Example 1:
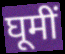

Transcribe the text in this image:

घूमीं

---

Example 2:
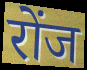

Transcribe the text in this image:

रोंज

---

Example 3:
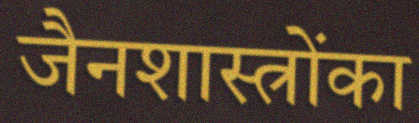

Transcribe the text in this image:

जैनशास्त्रोंका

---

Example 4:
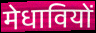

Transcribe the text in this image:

मेधावियों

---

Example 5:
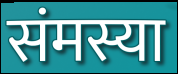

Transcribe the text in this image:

संमस्या